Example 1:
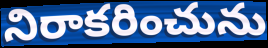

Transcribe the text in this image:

నిరాకరించును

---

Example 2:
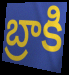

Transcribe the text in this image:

బ్రాకి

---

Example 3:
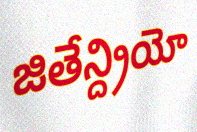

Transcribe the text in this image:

జితేన్ద్రియో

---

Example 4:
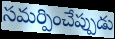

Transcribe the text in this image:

సమర్పించేప్పుడు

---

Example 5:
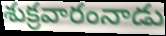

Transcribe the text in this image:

శుక్రవారంనాడు